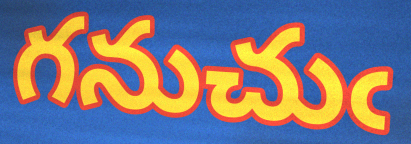
గనుచుఁ